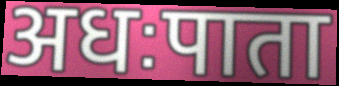
अधःपाता